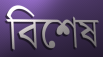
বিশেষ